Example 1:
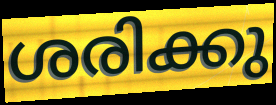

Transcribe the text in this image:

ശരിക്കു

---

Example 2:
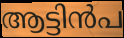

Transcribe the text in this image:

ആട്ടിൻപ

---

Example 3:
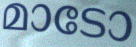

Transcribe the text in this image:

മാടോ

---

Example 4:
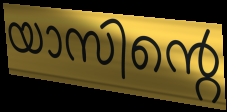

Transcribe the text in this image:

യാസിന്റെ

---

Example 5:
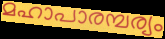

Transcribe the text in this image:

മഹാപാരമ്പര്യം